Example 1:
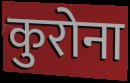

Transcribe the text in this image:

कुरोना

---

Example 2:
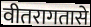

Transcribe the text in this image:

वीतरागतासे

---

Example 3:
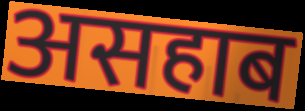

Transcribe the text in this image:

असहाब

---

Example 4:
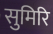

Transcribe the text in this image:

सुमिरि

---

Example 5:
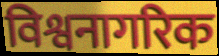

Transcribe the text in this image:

विश्वनागरिक